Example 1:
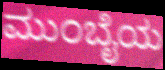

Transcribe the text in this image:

ಮುಂಬೈಯ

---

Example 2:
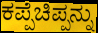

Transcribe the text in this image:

ಕಪ್ಪೆಚಿಪ್ಪನ್ನು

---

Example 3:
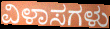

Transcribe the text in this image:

ವಿಳಾಸಗಳು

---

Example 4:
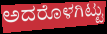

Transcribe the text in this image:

ಅದರೊಳಗಿಟ್ಟು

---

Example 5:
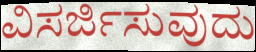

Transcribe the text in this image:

ವಿಸರ್ಜಿಸುವುದು